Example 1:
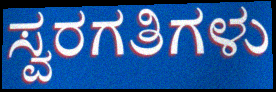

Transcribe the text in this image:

ಸ್ವರಗತಿಗಳು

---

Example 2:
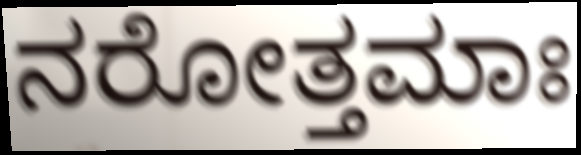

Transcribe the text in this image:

ನರೋತ್ತಮಾಃ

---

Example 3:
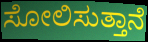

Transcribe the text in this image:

ಸೋಲಿಸುತ್ತಾನೆ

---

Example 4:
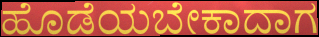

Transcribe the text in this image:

ಹೊಡೆಯಬೇಕಾದಾಗ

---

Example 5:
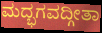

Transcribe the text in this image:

ಮದ್ಭಗವದ್ಗೀತಾ